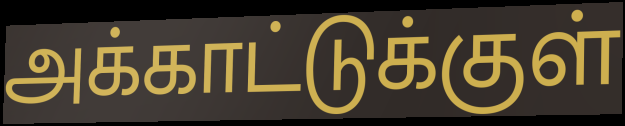
அக்காட்டுக்குள்